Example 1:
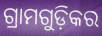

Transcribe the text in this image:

ଗ୍ରାମଗୁଡ଼ିକର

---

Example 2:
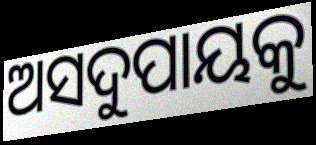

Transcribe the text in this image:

ଅସଦୁପାୟକୁ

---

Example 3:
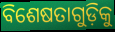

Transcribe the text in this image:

ବିଶେଷତାଗୁଡ଼ିକୁ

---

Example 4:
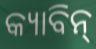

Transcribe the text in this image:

କ୍ୟାବିନ୍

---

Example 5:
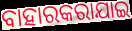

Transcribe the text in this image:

ବାହାରକରାଯାଇ